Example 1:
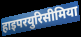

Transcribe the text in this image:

हाइपरयुरिसीमिया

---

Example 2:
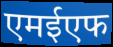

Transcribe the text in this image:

एमईएफ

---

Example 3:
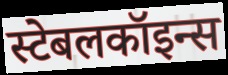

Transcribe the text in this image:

स्टेबलकॉइन्स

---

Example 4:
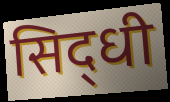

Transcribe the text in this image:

सिद्धी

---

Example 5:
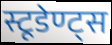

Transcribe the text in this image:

स्टूडेण्ट्स